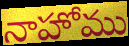
నాహోము